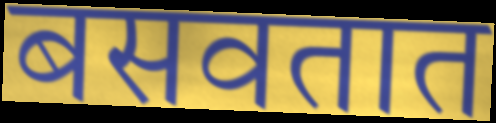
बसवतात